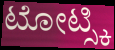
ಟೋಟ್ಸ್ಕಿ